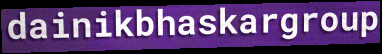
dainikbhaskargroup